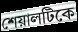
শেয়ালটিকে